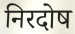
निरदोष